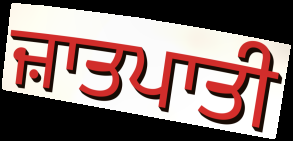
ਜ਼ਾਤਪਾਤੀ